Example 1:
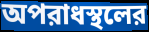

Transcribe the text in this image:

অপরাধস্থলের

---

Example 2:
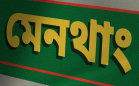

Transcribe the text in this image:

মেনথাং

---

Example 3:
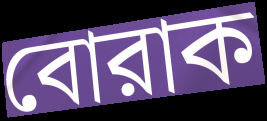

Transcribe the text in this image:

বোরাক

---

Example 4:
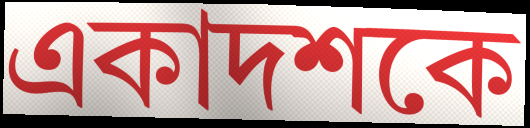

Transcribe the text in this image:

একাদশকে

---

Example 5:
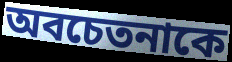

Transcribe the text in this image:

অবচেতনাকে